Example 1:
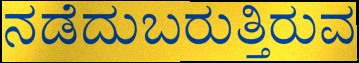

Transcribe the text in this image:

ನಡೆದುಬರುತ್ತಿರುವ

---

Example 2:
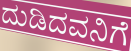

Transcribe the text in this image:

ದುಡಿದವನಿಗೆ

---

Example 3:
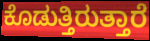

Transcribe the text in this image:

ಕೊಡುತ್ತಿರುತ್ತಾರೆ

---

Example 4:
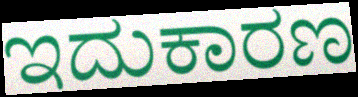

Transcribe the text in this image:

ಇದುಕಾರಣ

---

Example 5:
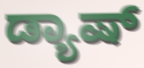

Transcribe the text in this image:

ಡ್ಯಾಷ್